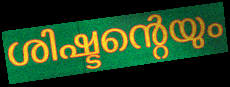
ശിഷ്ടന്റെയും